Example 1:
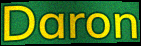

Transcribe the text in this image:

Daron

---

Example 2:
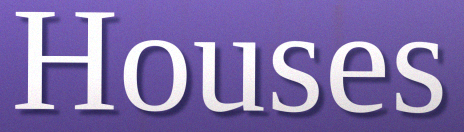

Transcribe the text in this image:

Houses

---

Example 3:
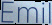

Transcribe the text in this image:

Emil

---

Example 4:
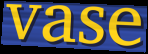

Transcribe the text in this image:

vase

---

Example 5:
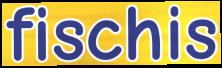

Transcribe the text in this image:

fischis